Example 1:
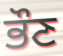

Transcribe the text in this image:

ਭੌਣ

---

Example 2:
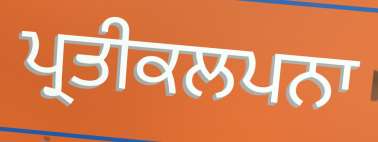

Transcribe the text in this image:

ਪ੍ਰਤੀਕਲਪਨਾ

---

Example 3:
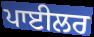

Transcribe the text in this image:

ਪਾਈਲਰ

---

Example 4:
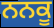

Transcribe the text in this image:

ਨਨਕੂ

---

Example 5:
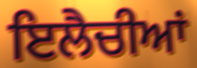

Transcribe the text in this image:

ਇਲੈਚੀਆਂ